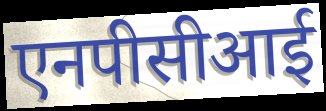
एनपीसीआई